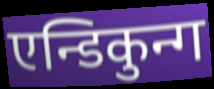
एन्डिकुन्ग